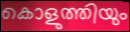
കൊളുത്തിയും